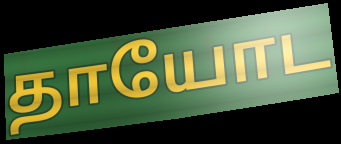
தாயோட